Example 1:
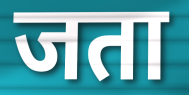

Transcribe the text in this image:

जता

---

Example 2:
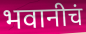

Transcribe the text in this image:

भवानीचं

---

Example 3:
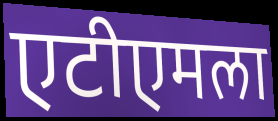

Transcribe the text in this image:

एटीएमला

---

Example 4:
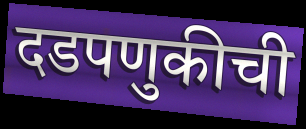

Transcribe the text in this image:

दडपणुकीची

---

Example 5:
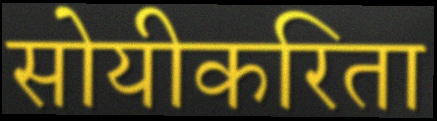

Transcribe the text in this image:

सोयीकरिता